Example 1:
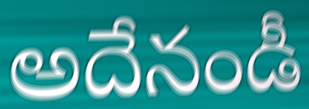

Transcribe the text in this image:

అదేనండీ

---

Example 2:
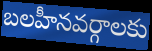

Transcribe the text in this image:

బలహీనవర్గాలకు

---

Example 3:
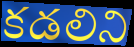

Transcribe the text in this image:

కడలిని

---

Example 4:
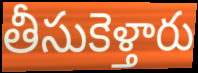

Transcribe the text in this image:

తీసుకెళ్తారు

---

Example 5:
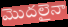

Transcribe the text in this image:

మొదలైనా